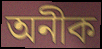
অনীক